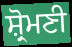
ਸ਼੍ਰੋਮਣੀ